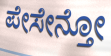
ಪೇಸೇನ್ತೋ